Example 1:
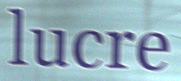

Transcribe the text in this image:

lucre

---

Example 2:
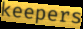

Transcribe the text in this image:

keepers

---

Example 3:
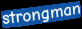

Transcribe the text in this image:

strongman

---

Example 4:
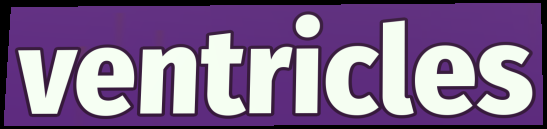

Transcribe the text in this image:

ventricles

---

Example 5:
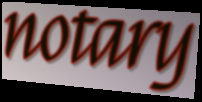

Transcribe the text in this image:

notary